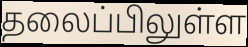
தலைப்பிலுள்ள